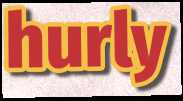
hurly